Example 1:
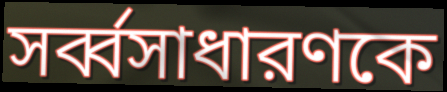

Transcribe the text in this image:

সর্ব্বসাধারণকে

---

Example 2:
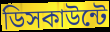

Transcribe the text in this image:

ডিসকাউন্টে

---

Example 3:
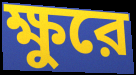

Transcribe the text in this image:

ক্ষুরে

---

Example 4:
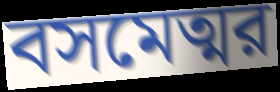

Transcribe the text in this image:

বসমেত্মর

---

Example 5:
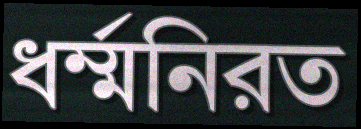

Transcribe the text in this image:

ধর্ম্মনিরত